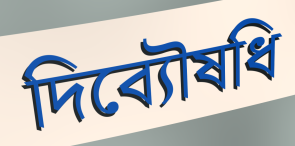
দিব্যৌষধি